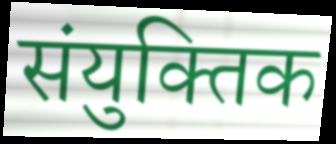
संयुक्‍तिक